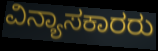
ವಿನ್ಯಾಸಕಾರರು